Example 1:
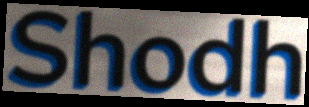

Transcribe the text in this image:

Shodh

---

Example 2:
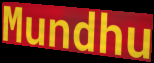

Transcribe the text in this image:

Mundhu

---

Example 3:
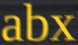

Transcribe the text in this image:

abx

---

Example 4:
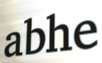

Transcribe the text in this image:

abhe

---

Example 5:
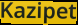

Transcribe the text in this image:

Kazipet